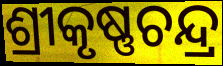
ଶ୍ରୀକୃଷ୍ଣଚନ୍ଦ୍ର